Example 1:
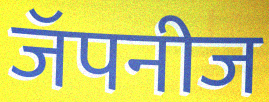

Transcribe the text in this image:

जॅपनीज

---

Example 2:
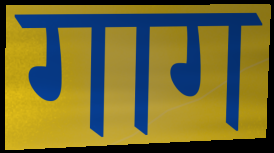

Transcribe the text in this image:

गाग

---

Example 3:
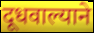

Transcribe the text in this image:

दूधवाल्याने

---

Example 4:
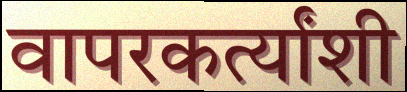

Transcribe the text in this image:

वापरकर्त्यांशी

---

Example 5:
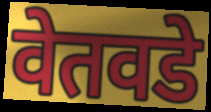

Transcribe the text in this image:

वेतवडे